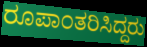
ರೂಪಾಂತರಿಸಿದ್ದರು